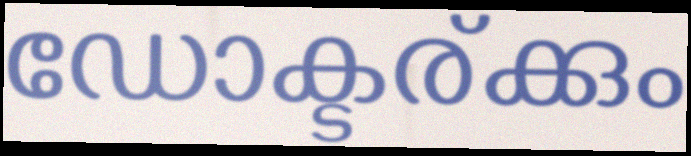
ഡോക്ടര്ക്കും